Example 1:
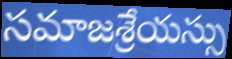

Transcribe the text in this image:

సమాజశ్రేయస్సు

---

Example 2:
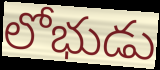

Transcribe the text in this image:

లోభుడు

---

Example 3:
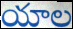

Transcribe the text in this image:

యాల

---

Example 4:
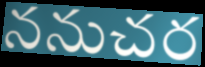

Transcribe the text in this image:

ననుచర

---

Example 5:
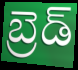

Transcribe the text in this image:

బ్రెడ్